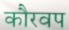
कौरवप